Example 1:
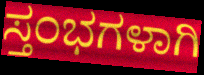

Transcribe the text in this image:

ಸ್ತಂಭಗಳಾಗಿ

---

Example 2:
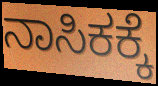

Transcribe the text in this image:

ನಾಸಿಕಕ್ಕೆ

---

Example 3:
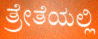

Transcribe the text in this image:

ತ್ರೇತೆಯಲ್ಲಿ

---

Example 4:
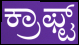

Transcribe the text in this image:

ಕ್ರಾಫ್ಟ್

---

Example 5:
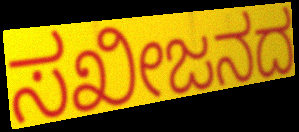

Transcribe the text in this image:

ಸಖೀಜನದ